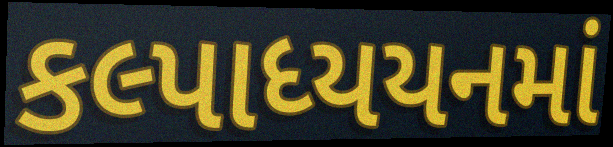
કલ્પાધ્યયનમાં